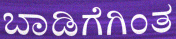
ಬಾಡಿಗೆಗಿಂತ